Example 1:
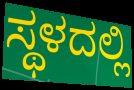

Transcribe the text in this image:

ಸ್ಥಳದಲ್ಲಿ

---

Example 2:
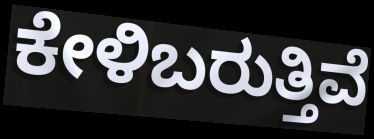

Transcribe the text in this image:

ಕೇಳಿಬರುತ್ತಿವೆ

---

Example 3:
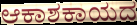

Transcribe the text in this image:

ಆಕಾಶಕಾಯದ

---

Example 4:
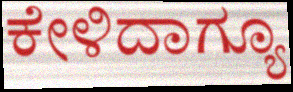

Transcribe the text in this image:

ಕೇಳಿದಾಗ್ಯೂ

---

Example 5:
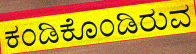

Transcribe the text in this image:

ಕಂಡಿಕೊಂಡಿರುವ